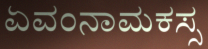
ಏವಂನಾಮಕಸ್ಸ